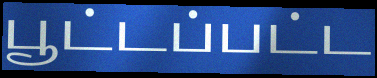
பூட்டப்பட்ட